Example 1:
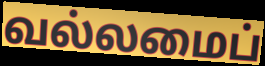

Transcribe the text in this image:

வல்லமைப்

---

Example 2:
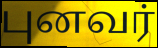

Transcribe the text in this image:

புனவர்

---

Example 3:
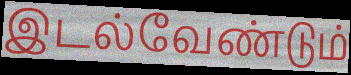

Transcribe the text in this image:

இடல்வேண்டும்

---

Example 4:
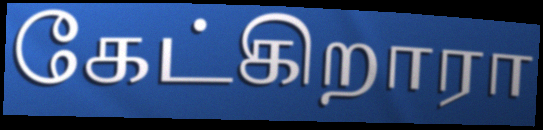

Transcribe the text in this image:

கேட்கிறாரா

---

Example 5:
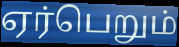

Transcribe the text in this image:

ஏர்பெறும்